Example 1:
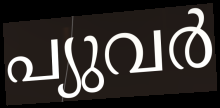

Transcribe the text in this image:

പ്യുവർ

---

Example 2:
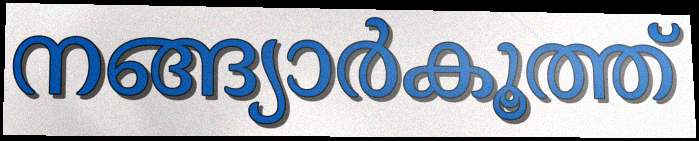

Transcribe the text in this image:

നങ്ങ്യാർകൂത്ത്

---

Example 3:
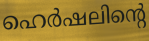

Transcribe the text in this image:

ഹെർഷലിന്റെ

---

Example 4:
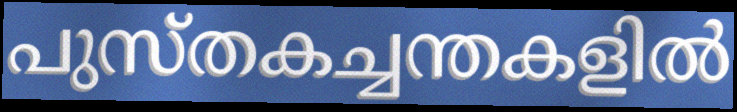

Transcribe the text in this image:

പുസ്തകച്ചന്തകളിൽ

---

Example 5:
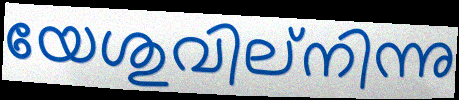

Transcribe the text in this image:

യേശുവില്നിന്നു